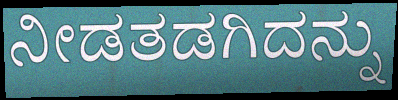
ನೀಡತಡಗಿದನ್ನು